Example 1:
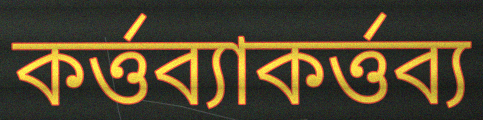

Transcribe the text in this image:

কর্ত্তব্যাকর্ত্তব্য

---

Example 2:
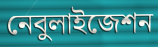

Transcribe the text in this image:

নেবুলাইজেশন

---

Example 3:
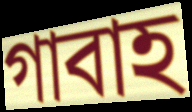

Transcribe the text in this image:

গাবাহ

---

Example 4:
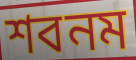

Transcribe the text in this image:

শবনম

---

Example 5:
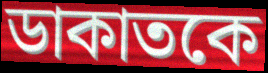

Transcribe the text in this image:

ডাকাতকে